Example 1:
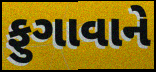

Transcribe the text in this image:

ફુગાવાને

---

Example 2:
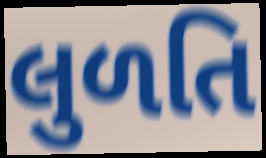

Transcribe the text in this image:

લુળતિ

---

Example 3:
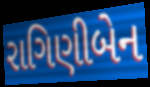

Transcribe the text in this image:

રાગિણીબેન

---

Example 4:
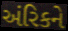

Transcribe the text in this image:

અંરિકને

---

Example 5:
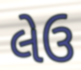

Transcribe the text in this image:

લેઉ